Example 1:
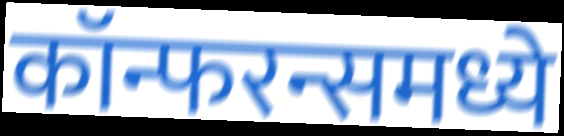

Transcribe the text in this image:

कॉन्फरन्समध्ये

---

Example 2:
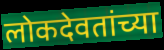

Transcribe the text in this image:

लोकदेवतांच्या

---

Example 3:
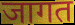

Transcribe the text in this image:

जागत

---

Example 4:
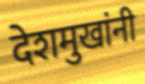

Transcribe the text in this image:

देशमुखांनी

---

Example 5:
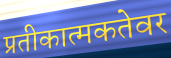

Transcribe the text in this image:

प्रतीकात्मकतेवर